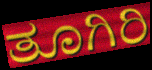
ತೂಗಿರಿ